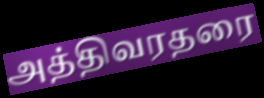
அத்திவரதரை